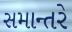
સમાન્તરે